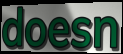
doesn